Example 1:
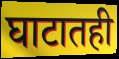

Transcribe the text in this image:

घाटातही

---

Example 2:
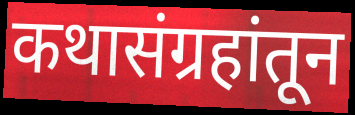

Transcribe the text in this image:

कथासंग्रहांतून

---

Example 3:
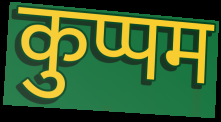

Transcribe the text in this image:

कुप्पम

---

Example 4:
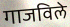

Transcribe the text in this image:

गाजविले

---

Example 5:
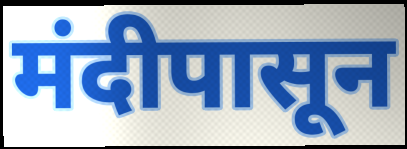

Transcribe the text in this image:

मंदीपासून